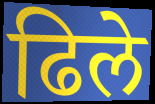
ढिले